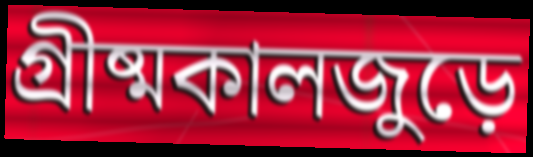
গ্রীষ্মকালজুড়ে